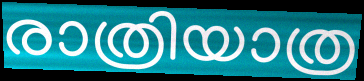
രാത്രിയാത്ര